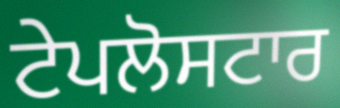
ਟੇਪਲੋਸਟਾਰ